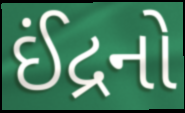
ઈંદ્રનો